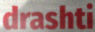
drashti